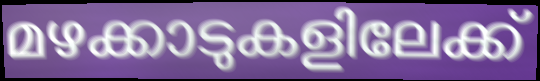
മഴക്കാടുകളിലേക്ക്